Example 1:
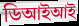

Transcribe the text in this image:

ডিআইআই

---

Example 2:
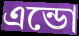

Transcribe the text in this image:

এন্ডো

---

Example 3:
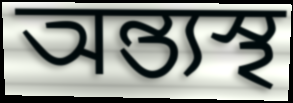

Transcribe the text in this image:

অন্ত্যস্থ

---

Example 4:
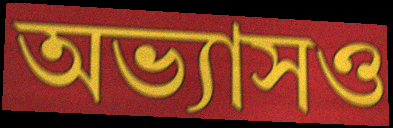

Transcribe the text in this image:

অভ্যাসও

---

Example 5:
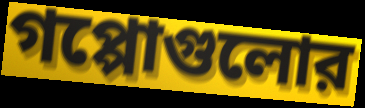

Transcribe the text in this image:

গপ্পোগুলোর